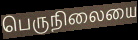
பெருநிலையை